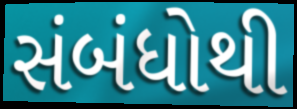
સંબંધોથી